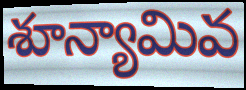
శూన్యామివ